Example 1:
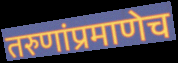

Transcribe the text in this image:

तरुणांप्रमाणेच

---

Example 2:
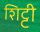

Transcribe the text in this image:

शिट्टी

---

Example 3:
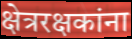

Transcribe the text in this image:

क्षेत्ररक्षकांना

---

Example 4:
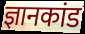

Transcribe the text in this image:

ज्ञानकांड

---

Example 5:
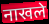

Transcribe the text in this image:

नाखले